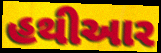
હથીઆર